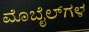
ಮೊಬೈಲ್‌ಗಳ